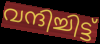
വന്ദിച്ചിട്ട്